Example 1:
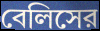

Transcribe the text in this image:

বেলিসের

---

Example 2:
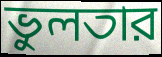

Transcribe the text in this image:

ভুলতার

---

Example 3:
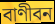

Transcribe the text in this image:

বাণীবন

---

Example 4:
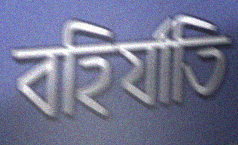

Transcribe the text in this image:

বহির্যাতি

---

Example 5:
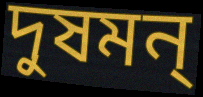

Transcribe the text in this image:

দুষমন্